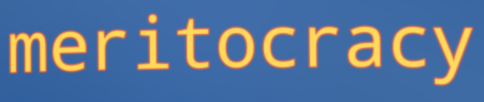
meritocracy